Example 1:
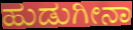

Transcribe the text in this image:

ಹುಡುಗೀನಾ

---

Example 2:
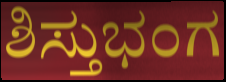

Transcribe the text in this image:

ಶಿಸ್ತುಭಂಗ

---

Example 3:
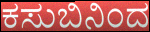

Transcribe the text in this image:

ಕಸುಬಿನಿಂದ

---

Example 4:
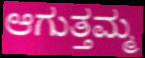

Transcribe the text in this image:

ಆಗುತ್ತಮ್ಮ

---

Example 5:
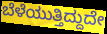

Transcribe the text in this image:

ಬೆಳೆಯುತ್ತಿದ್ದುದೇ